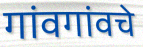
गांवगांवचे